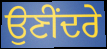
ਉਣੀਂਦਰੇ